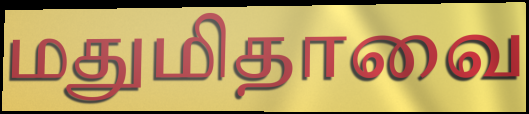
மதுமிதாவை